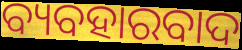
ବ୍ୟବହାରବାଦ